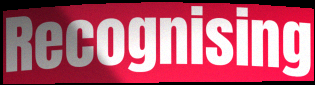
Recognising